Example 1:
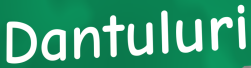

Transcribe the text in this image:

Dantuluri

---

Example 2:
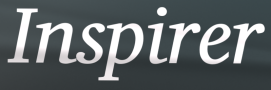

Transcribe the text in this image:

Inspirer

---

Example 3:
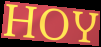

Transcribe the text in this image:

HOY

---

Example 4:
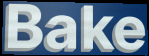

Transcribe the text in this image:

Bake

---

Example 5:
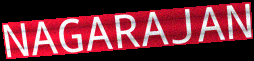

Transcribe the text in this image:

NAGARAJAN